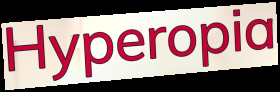
Hyperopia